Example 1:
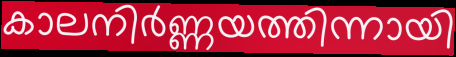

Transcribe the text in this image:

കാലനിർണ്ണയത്തിന്നായി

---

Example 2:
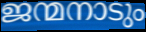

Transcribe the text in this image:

ജന്മനാടും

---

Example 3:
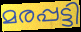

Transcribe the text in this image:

മരപ്പട്ടി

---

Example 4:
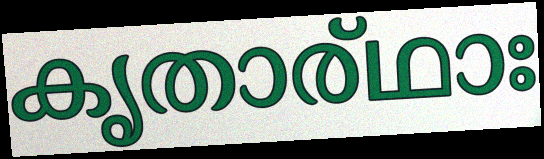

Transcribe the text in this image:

കൃതാര്ഥാഃ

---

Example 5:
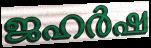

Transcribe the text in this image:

ജഹർഷ